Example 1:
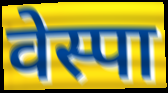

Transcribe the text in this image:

वेस्पा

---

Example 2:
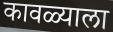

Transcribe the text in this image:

कावळ्याला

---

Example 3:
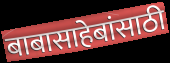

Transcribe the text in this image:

बाबासाहेबांसाठी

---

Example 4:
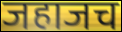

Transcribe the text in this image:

जहाजच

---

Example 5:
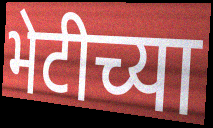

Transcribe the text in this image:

भेटीच्या